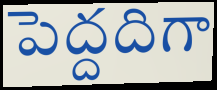
పెద్దదిగా